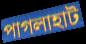
পাগলাহাট